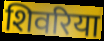
शिवरिया